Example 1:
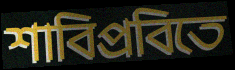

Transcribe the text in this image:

শাবিপ্রবিতে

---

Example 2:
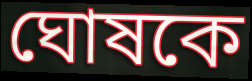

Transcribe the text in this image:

ঘোষকে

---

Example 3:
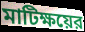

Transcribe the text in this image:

মাটিক্ষয়ের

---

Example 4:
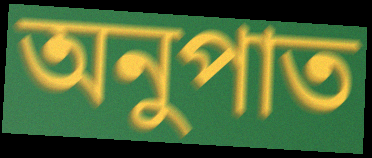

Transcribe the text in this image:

অনুপাত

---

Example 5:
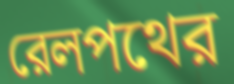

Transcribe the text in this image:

রেলপথের